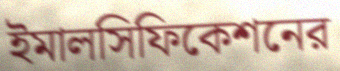
ইমালসিফিকেশনের